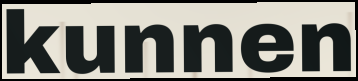
kunnen